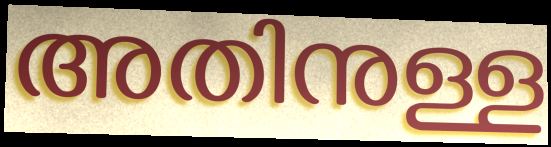
അതിനുള്ള